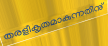
തരളീകൃതമാകുന്നതിനു്